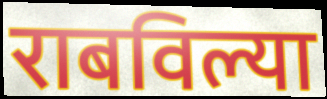
राबविल्या